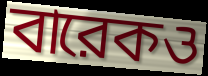
বারেকও